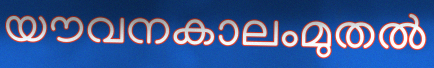
യൗവനകാലംമുതൽ